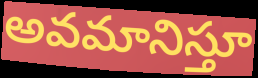
అవమానిస్తూ